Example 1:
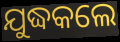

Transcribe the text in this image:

ଯୁଦ୍ଧକଲେ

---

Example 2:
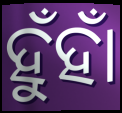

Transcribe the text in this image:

ହୁଁହାଁ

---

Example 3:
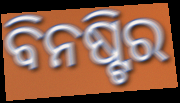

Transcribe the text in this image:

ବିନଷ୍ଟିର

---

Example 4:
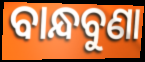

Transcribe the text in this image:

ବାନ୍ଧବୁଣା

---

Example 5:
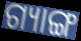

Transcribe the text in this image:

ଗ୍ୟାଙ୍ଗ